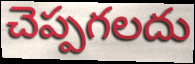
చెప్పగలదు